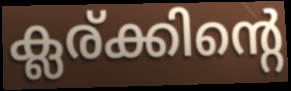
ക്ലര്ക്കിന്റെ